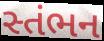
સ્તંભન